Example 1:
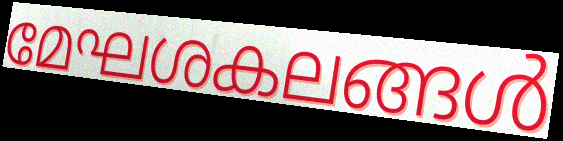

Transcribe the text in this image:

മേഘശകലങ്ങൾ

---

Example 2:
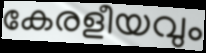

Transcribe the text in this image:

കേരളീയവും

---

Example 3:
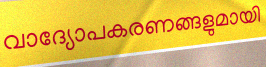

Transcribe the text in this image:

വാദ്യോപകരണങ്ങളുമായി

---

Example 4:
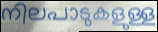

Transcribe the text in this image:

നിലപാടുകളുള്ള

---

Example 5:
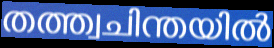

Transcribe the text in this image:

തത്ത്വചിന്തയിൽ